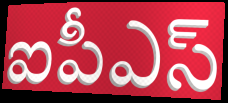
ఐపీఎస్